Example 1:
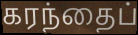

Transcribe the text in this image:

கரந்தைப்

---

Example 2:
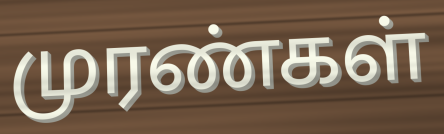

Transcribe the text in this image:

முரண்கள்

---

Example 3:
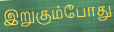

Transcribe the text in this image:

இறுகும்போது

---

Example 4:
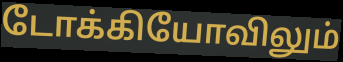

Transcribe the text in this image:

டோக்கியோவிலும்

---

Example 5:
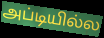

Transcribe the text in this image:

அப்டியில்ல